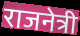
राजनेत्री